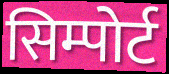
सिम्पोर्ट